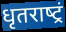
धृतराष्ट्रं